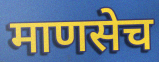
माणसेच